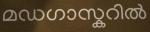
മഡഗാസ്കറിൽ